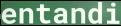
entandi